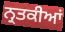
ਨ੍ਰਤਕੀਆਂ